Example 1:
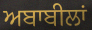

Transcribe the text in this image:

ਅਬਾਬੀਲਾਂ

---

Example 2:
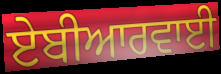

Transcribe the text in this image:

ਏਬੀਆਰਵਾਈ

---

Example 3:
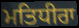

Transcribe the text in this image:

ਮਤਿਧੀਰਾ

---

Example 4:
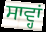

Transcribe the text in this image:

ਸਾਵ੍ਹਾਂ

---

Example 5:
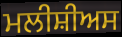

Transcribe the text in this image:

ਮਲੀਸ਼ੀਅਸ